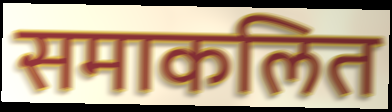
समाकलित